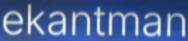
ekantman